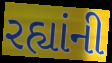
રહ્યાંની